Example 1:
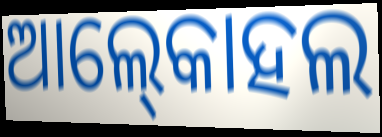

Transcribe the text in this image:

ଆଲ୍‍କୋହଲ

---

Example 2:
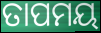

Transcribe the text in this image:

ତାପମୟ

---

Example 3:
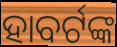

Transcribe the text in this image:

ହାବର୍ଟଙ୍କ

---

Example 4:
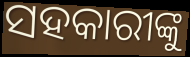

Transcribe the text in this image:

ସହକାରୀଙ୍କୁ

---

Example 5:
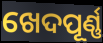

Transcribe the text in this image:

ଖେଦପୂର୍ଣ୍ଣ